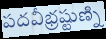
పదవీభ్రష్టుణ్ని